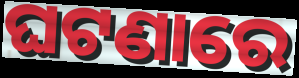
ଘଟଣାରେ